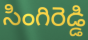
సింగిరెడ్డి